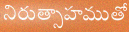
నిరుత్సాహముతో